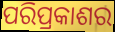
ପରିପ୍ରକାଶର